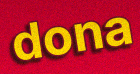
dona